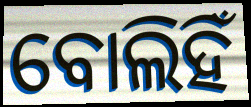
ବୋଲିହିଁ